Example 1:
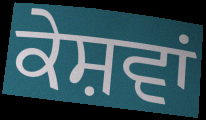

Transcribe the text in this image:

ਕੇਸ਼ਵਾਂ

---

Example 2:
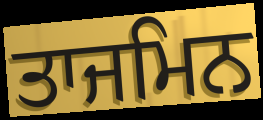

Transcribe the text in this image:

ਤਾਜਮਿਨ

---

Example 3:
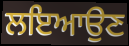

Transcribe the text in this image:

ਲਇਆਉਣ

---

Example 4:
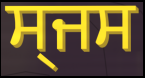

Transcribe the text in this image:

ਸ੍ਜਸ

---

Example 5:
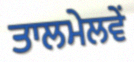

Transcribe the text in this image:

ਤਾਲਮੇਲਵੇਂ